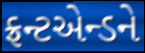
ફ્રન્ટએન્ડને